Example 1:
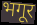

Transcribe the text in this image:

भगूर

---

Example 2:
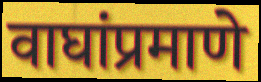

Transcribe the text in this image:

वाघांप्रमाणे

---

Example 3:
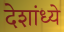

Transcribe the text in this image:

देशांध्ये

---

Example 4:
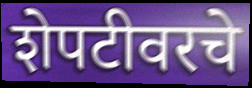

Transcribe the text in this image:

शेपटीवरचे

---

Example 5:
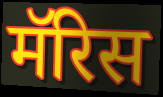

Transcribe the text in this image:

मॅरिस